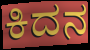
ಕಿದನ